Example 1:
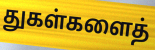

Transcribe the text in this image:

துகள்களைத்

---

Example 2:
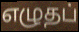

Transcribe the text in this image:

எழுதப்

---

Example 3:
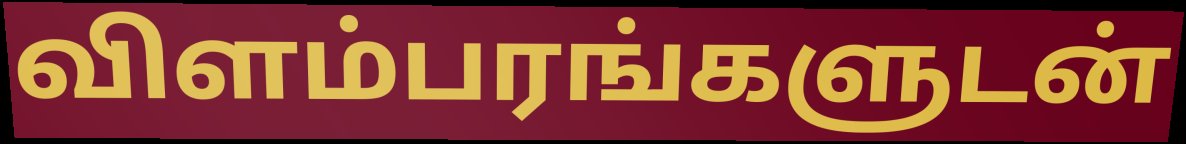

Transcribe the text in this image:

விளம்பரங்களுடன்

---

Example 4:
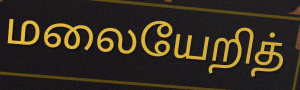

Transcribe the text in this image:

மலையேறித்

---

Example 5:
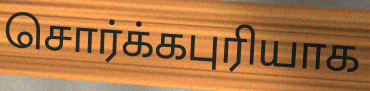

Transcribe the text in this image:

சொர்க்கபுரியாக